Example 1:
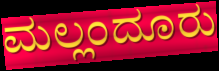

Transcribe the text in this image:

ಮಲ್ಲಂದೂರು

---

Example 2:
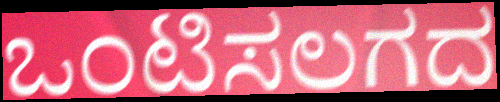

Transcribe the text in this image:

ಒಂಟಿಸಲಗದ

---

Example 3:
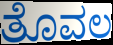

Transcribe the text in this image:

ತೊವಲ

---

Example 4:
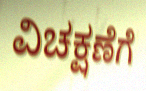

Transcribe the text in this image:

ವಿಚಕ್ಷಣೆಗೆ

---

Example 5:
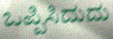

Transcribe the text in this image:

ಒಪ್ಪಿಸಿದುದು